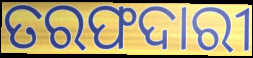
ତରଫଦାରୀ